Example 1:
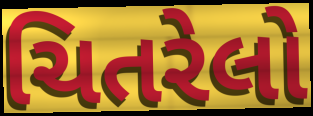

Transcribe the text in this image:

ચિતરેલો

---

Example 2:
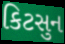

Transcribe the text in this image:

કિટસુન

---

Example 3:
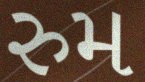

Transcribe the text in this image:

રુમ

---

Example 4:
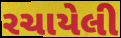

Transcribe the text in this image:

રચાયેલી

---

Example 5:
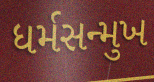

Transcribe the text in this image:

ધર્મસન્મુખ